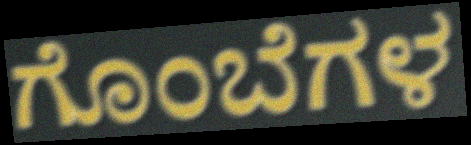
ಗೊಂಬೆಗಳ